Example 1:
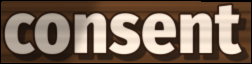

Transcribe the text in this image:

consent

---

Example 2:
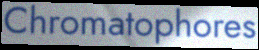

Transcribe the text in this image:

Chromatophores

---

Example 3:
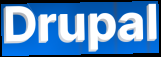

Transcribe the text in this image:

Drupal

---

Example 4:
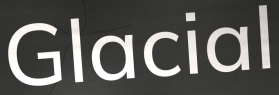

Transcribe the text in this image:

Glacial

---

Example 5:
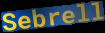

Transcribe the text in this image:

Sebrell